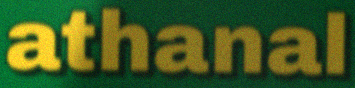
athanal